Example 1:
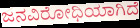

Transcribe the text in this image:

ಜನವಿರೋಧಿಯಾಗಿದೆ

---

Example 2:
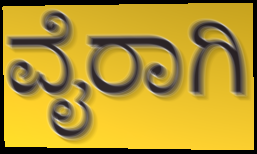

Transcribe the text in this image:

ವೈರಾಗಿ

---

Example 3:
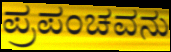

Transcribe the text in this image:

ಪ್ರಪಂಚವನು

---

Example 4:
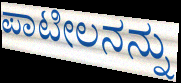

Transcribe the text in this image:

ಪಾಟೀಲನನ್ನು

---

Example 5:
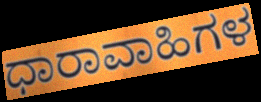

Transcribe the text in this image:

ಧಾರಾವಾಹಿಗಳ